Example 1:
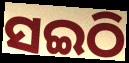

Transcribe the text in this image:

ସଇଠି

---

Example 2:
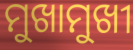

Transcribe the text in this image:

ମୁଖାମୁଖୀ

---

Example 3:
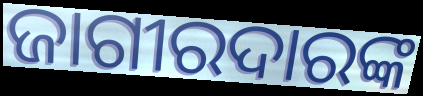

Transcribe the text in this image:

ଜାଗୀରଦାରଙ୍କ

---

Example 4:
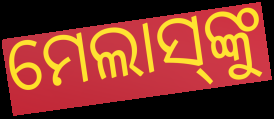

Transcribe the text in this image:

ମେଲାସ୍‌ଙ୍କୁ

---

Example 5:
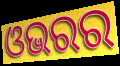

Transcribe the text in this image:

ଓଭରର